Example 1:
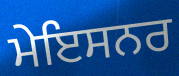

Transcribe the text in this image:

ਮੇਇਸਨਰ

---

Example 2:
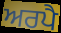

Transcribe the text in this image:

ਅਰਪੈ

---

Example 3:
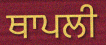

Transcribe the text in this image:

ਥਾਪਲੀ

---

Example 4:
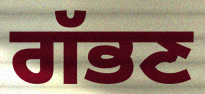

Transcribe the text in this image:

ਗੱਭਣ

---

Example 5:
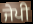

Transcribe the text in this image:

ਜੇਪੀ